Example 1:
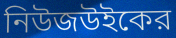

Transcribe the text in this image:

নিউজউইকের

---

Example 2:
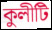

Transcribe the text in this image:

কুলীটি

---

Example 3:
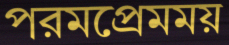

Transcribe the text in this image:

পরমপ্রেমময়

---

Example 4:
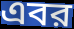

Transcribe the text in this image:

এবর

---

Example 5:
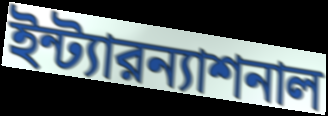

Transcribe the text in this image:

ইন্ট্যারন্যাশনাল